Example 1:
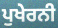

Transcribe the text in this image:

ਪੁਖੇਰਨੀ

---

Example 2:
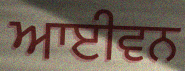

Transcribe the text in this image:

ਆਈਵਨ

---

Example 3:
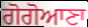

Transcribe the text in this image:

ਗੋਗੋਆਣਾ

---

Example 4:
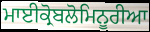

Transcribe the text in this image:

ਮਾਈਕ੍ਰੋਬਲੋਮਿਨੂਰੀਆ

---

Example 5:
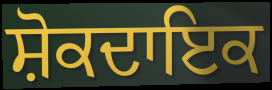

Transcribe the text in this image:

ਸ਼ੋਕਦਾਇਕ